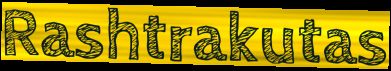
Rashtrakutas